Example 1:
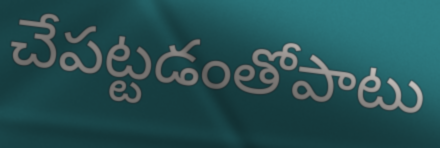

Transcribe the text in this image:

చేపట్టడంతోపాటు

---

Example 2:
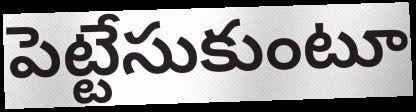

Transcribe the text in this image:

పెట్టేసుకుంటూ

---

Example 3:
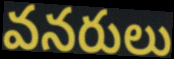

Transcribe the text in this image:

వనరులు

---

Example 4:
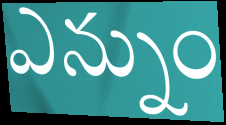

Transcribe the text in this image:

ఎన్నుం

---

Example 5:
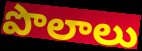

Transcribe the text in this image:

పొలాలు